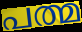
പത്മ